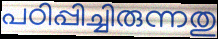
പഠിപ്പിച്ചിരുന്നതു